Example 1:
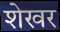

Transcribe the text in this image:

शेखर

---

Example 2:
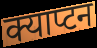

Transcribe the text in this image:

क्याप्टन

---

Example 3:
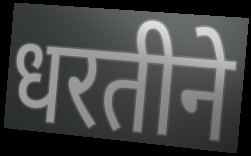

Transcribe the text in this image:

धरतीने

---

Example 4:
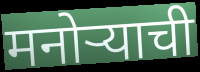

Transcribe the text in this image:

मनोऱ्याची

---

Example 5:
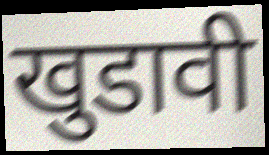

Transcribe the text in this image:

खुडावी